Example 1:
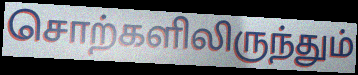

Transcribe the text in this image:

சொற்களிலிருந்தும்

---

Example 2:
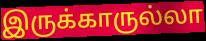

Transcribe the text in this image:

இருக்காருல்லா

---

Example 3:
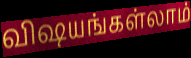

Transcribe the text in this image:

விஷயங்கள்லாம்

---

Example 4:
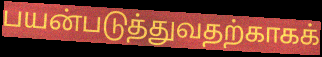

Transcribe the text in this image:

பயன்படுத்துவதற்காகக்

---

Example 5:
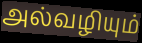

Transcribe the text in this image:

அல்வழியும்